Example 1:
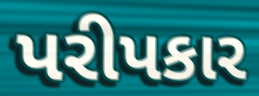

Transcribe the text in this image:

પરીપકાર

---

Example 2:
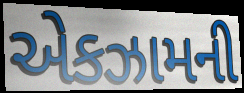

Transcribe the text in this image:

એકઝામની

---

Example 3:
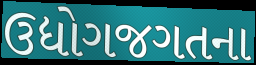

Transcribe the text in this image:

ઉદ્યોગજગતના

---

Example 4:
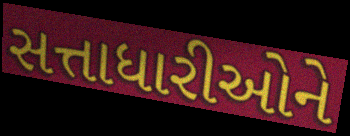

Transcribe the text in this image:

સત્તાધારીઓને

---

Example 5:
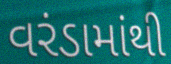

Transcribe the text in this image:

વરંડામાંથી